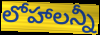
లోహాలన్నీ